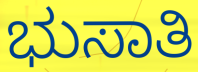
ಭುಸಾತಿ